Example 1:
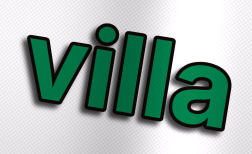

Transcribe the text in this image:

villa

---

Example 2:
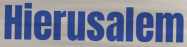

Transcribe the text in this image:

Hierusalem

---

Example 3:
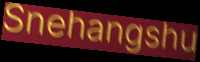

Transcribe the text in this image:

Snehangshu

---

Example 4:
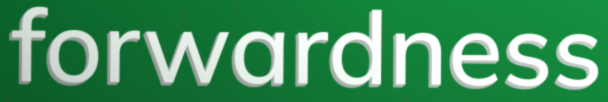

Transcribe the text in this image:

forwardness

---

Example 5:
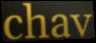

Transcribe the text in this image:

chav